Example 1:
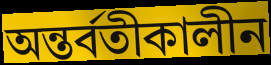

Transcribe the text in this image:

অন্তর্বতীকালীন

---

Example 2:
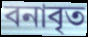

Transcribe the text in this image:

বনাবৃত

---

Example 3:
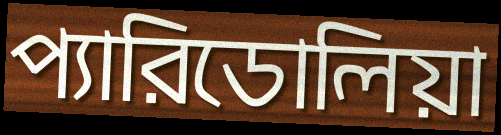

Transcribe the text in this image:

প্যারিডোলিয়া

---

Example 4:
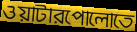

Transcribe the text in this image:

ওয়াটারপোলোতে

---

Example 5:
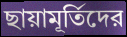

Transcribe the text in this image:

ছায়ামূর্তিদের